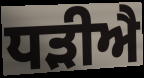
ਧੜੀਐ